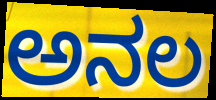
ಅನಲ